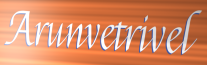
Arunvetrivel